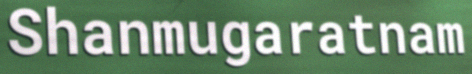
Shanmugaratnam